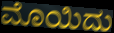
ಮೊಯಿದು